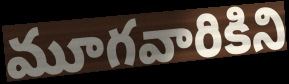
మూగవారికిని